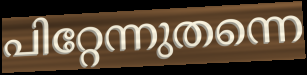
പിറ്റേന്നുതന്നെ